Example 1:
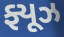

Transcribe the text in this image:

ફ્યૂઝ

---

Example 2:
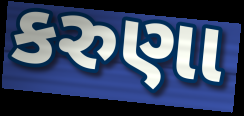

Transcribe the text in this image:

કરુણા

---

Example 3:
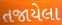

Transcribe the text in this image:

તજાયેલા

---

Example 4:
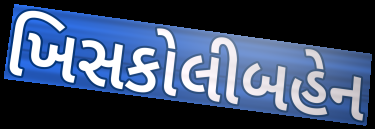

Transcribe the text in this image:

ખિસકોલીબહેન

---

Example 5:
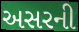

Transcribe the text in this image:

અસરની